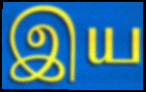
இய